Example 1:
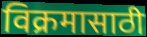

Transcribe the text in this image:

विक्रमासाठी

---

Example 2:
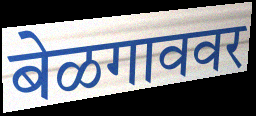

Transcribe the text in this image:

बेळगाववर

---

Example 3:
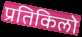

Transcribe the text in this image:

प्रतिकिलो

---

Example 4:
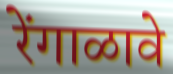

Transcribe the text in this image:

रेंगाळावे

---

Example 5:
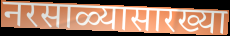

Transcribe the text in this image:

नरसाळ्यासारख्या